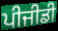
ਪੀਜੀਡੀ